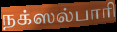
நக்ஸல்பாரி